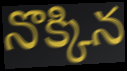
నొక్కిన